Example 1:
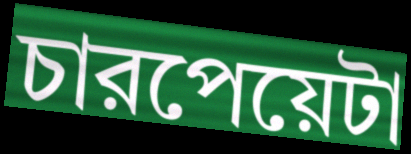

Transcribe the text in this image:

চারপেয়েটা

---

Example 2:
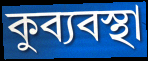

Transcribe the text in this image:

কুব্যবস্থা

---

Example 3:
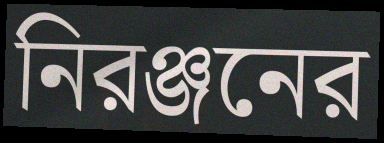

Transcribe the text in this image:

নিরঞ্জনের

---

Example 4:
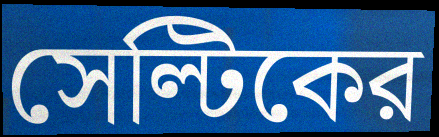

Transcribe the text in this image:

সেল্টিকের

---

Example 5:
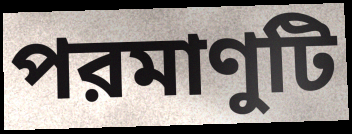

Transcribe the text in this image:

পরমাণুটি